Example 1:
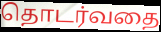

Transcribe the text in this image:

தொடர்வதை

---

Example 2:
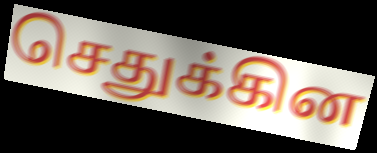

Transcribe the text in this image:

செதுக்கின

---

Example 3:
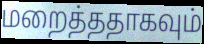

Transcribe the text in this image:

மறைத்ததாகவும்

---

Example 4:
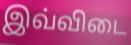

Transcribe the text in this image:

இவ்விடை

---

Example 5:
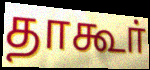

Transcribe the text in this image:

தாகூர்